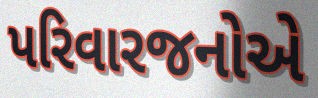
પરિવારજનોએ